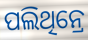
ପଲିଥିନ୍ରେ